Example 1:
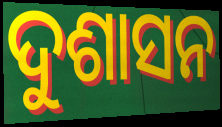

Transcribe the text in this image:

ଦୁଶାସନ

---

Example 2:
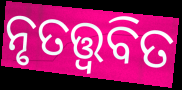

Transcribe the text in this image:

ନୃତତ୍ତ୍ୱବିତ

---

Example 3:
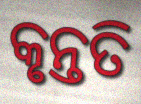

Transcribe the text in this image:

କୃନ୍ତତି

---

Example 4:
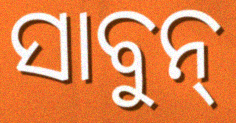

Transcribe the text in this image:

ସାବୁନ୍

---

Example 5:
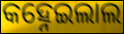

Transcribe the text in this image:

କହ୍ନେଇଲାଲ